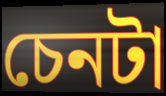
চেনটা